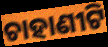
ଚାହାଣୀଟି